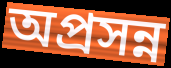
অপ্রসন্ন